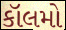
કૉલમો